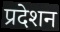
प्रदेशन